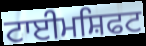
ਟਾਈਮਸ਼ਿਫਟ